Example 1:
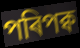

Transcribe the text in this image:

পৰিপক্ব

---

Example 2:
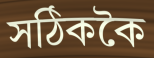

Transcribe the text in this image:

সঠিককৈ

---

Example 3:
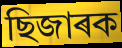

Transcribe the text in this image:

ছিজাৰক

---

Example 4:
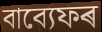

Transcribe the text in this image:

বাব্যেফৰ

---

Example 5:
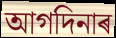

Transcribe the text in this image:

আগদিনাৰ